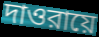
দাওরায়ে